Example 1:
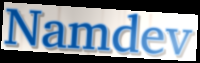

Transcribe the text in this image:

Namdev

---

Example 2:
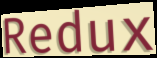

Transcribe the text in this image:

Redux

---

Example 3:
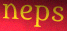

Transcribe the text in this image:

neps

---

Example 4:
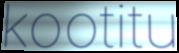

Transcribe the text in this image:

kootitu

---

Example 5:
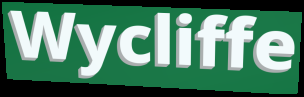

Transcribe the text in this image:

Wycliffe